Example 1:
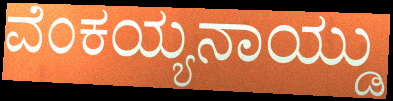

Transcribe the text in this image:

ವೆಂಕಯ್ಯನಾಯ್ಡು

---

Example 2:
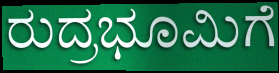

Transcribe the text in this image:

ರುದ್ರಭೂಮಿಗೆ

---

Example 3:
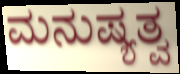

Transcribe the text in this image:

ಮನುಷ್ಯತ್ವ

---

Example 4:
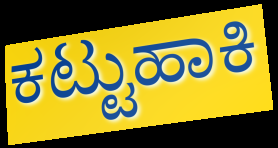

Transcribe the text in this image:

ಕಟ್ಟುಹಾಕಿ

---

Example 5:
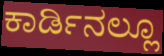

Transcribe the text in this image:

ಕಾರ್ಡಿನಲ್ಲೂ